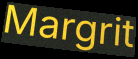
Margrit